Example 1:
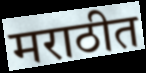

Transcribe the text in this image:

मराठीत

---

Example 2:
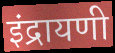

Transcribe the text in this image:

इंद्रायणी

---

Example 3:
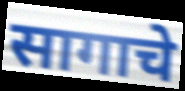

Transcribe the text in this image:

सागाचे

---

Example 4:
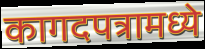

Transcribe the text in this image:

कागदपत्रामध्ये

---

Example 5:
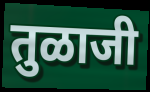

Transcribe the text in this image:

तुळाजी